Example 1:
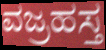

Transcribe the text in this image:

ವಜ್ರಹಸ್ತ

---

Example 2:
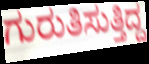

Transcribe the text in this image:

ಗುರುತಿಸುತ್ತಿದ್ದ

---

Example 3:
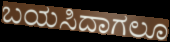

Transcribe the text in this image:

ಬಯಸಿದಾಗಲೂ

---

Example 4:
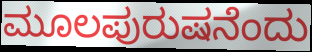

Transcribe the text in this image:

ಮೂಲಪುರುಷನೆಂದು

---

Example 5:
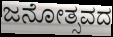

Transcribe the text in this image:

ಜನೋತ್ಸವದ